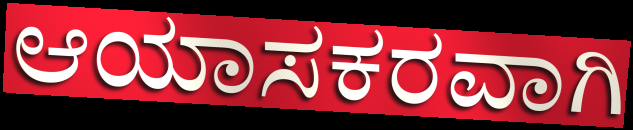
ಆಯಾಸಕರವಾಗಿ